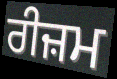
ਰੀਜ਼ਮ